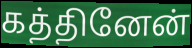
கத்தினேன்